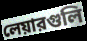
লেয়ারগুলি